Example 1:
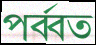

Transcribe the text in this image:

পর্ব্বত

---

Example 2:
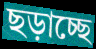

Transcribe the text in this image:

ছড়াচ্ছে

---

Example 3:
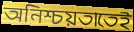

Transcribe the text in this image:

অনিশ্চয়তাতেই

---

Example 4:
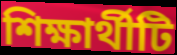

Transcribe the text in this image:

শিক্ষার্থীটি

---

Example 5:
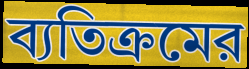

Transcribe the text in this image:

ব্যতিক্রমের